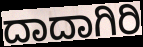
ದಾದಾಗಿರಿ